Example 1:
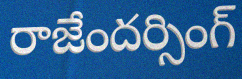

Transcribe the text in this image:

రాజేందర్సింగ్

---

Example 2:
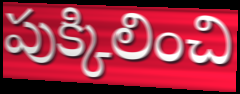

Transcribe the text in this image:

పుక్కిలించి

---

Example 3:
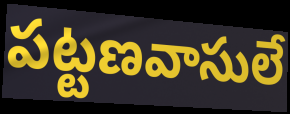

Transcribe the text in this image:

పట్టణవాసులే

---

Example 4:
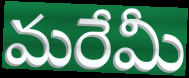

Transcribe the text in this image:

మరేమీ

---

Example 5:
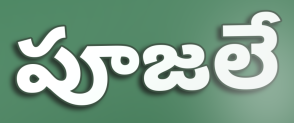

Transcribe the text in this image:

పూజలే